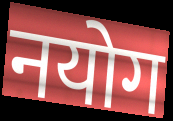
नयोग